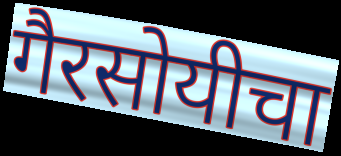
गैरसोयीचा